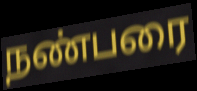
நண்பரை